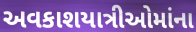
અવકાશયાત્રીઓમાંના